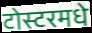
टोस्टरमधे